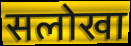
सलोखा